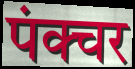
पंक्‍चर